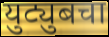
युट्युबचा